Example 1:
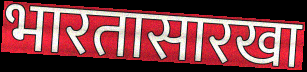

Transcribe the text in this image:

भारतासारखा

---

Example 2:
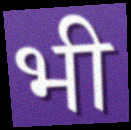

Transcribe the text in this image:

भी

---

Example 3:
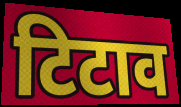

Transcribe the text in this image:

टिटाव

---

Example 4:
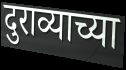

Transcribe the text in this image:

दुराव्याच्या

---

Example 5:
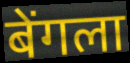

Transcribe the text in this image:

बेंगला